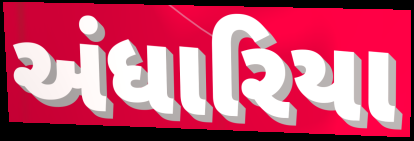
અંધારિયા